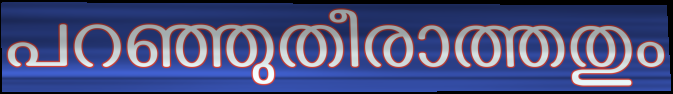
പറഞ്ഞുതീരാത്തതും